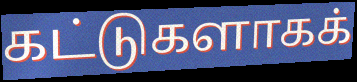
கட்டுகளாகக்